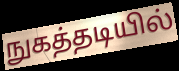
நுகத்தடியில்